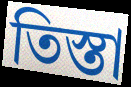
তিস্তা